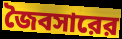
জৈবসারের